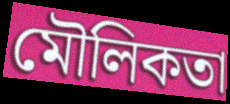
মৌলিকতা